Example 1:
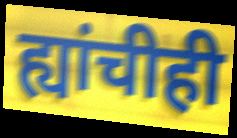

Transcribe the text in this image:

ह्यांचीही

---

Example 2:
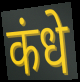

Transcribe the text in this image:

कंधे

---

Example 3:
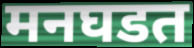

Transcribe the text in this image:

मनघडत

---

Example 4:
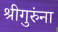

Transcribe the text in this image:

श्रीगुरुंना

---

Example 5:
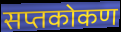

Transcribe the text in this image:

सप्तकोकण